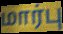
மார்பு